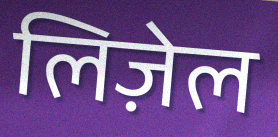
लिज़ेल